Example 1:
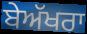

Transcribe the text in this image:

ਬੇਅੱਖਰਾ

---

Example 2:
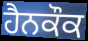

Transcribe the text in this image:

ਹੈਨਕੌਕ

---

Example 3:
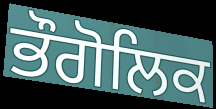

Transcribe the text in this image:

ਭੌਗੋਲਿਕ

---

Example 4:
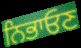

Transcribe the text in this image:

ਨਿਭਾਓਣ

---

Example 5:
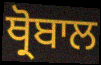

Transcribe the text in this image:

ਥ੍ਰੋਬਾਲ